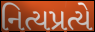
નિત્યપ્રત્યે